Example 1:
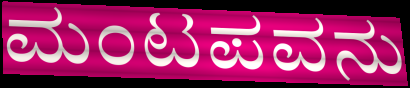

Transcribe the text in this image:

ಮಂಟಪವನು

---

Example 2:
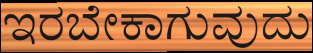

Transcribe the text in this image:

ಇರಬೇಕಾಗುವುದು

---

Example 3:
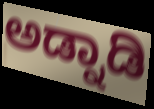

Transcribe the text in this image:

ಅಡ್ನಾಡಿ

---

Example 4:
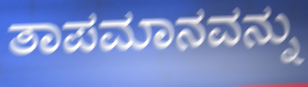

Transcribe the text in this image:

ತಾಪಮಾನವನ್ನು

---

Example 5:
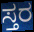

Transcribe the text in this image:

ಸ್ತರ